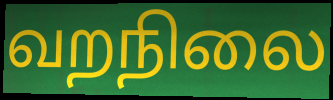
வறநிலை